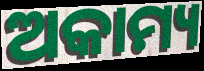
ଅକାମ୍ୟ